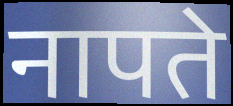
नापते